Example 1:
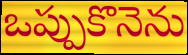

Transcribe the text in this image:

ఒప్పుకొనెను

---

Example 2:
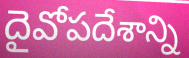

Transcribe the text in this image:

దైవోపదేశాన్ని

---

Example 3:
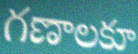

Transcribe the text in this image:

గణాలకూ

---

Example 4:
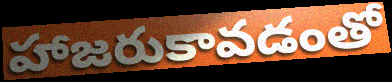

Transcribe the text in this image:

హాజరుకావడంతో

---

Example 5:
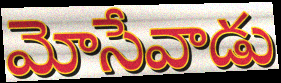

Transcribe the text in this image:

మోసేవాడు